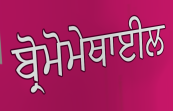
ਬ੍ਰੋਮੋਮੇਥਾਈਲ